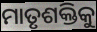
ମାତୃଶକ୍ତିକୁ